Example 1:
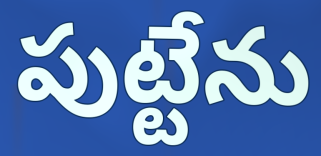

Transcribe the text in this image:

పుట్టేను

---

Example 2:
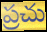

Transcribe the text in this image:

ప్రచు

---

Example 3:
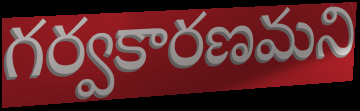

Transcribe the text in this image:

గర్వకారణమని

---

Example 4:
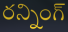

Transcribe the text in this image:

రన్నింగ్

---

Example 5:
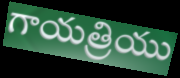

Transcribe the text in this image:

గాయత్రియు